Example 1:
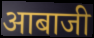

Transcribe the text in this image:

आबाजी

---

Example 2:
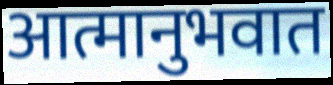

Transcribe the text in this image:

आत्मानुभवात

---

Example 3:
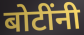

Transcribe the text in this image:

बोटींनी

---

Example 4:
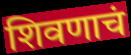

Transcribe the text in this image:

शिवणाचं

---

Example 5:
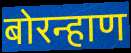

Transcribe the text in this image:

बोरन्हाण